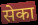
सेका